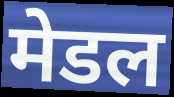
मेडल